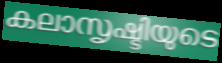
കലാസൃഷ്ടിയുടെ